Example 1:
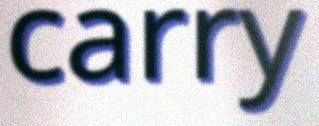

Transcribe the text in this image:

carry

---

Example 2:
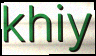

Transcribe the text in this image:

khiy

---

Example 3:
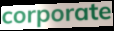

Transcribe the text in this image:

corporate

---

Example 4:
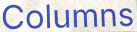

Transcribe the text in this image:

Columns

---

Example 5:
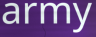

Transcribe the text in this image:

army